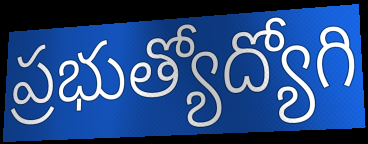
ప్రభుత్యోద్యోగి